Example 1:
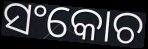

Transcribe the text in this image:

ସଂକୋଚ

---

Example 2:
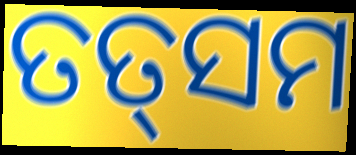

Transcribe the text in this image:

ତତ୍‌ସମ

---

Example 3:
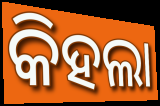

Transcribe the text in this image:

କିହଲା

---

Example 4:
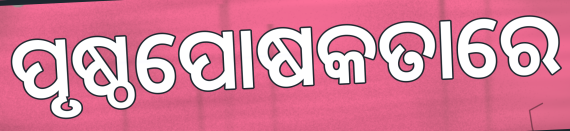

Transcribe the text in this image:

ପୃଷ୍ଠପୋଷକତାରେ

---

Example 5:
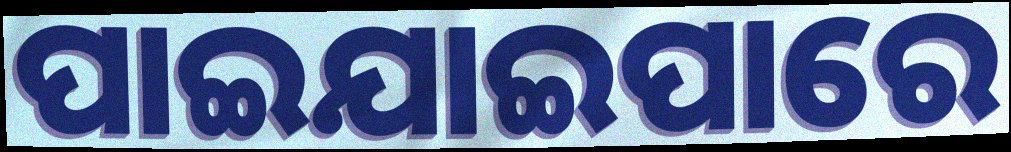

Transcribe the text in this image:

ପାଇଯାଇପାରେ